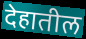
देहातील